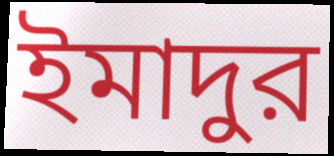
ইমাদুর